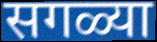
सगळ्या